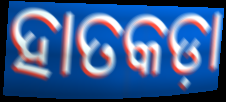
ହାତକଡ଼ା